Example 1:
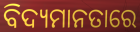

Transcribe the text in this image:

ବିଦ୍ୟମାନତାରେ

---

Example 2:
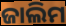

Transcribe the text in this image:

ଜାଲିମ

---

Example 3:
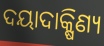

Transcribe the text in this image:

ଦୟାଦାକ୍ଷିଣ୍ୟ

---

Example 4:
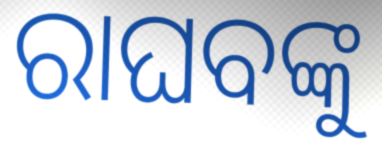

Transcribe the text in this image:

ରାଘବଙ୍କୁ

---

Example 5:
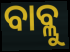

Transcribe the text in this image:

ବାବ୍ଲୁ